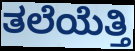
ತಲೆಯೆತ್ತಿ